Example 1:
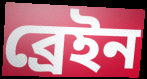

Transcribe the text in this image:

ব্রেইন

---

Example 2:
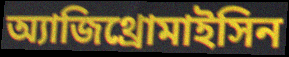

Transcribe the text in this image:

অ্যাজিথ্রোমাইসিন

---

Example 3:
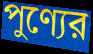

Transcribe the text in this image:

পুণ্যের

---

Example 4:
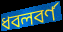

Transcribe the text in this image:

ধবলবর্ণ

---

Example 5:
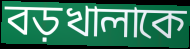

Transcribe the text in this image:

বড়খালাকে